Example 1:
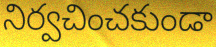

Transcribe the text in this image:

నిర్వచించకుండా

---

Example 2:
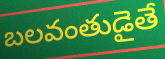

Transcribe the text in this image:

బలవంతుడైతే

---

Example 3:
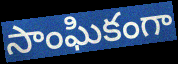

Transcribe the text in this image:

సాంఘికంగా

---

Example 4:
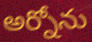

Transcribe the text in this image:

అర్నోను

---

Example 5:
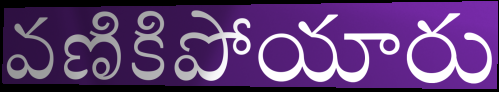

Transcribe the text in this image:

వణికిపోయారు